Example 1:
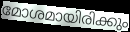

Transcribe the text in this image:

മോശമായിരിക്കും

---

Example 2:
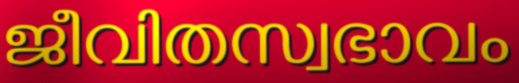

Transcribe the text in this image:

ജീവിതസ്വഭാവം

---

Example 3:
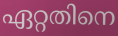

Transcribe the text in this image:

ഏറ്റതിനെ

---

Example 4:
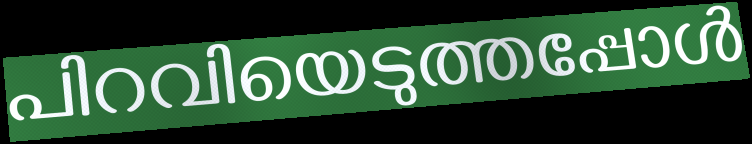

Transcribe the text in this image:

പിറവിയെടുത്തപ്പോൾ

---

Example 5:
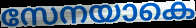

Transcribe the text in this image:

സേനയാകെ